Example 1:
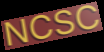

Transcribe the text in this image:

NCSC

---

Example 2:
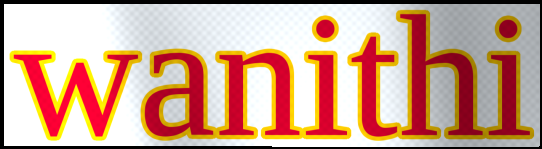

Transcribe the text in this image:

wanithi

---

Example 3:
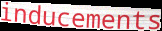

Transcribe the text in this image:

inducements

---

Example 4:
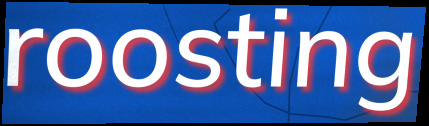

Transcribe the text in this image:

roosting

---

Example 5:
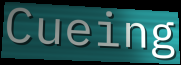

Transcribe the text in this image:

Cueing